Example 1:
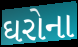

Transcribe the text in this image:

ઘરોના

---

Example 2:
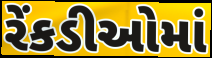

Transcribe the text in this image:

રેંકડીઓમાં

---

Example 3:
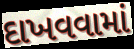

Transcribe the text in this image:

દાખવવામાં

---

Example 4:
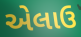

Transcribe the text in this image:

એલાઉ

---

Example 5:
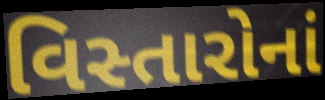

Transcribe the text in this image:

વિસ્તારોનાં